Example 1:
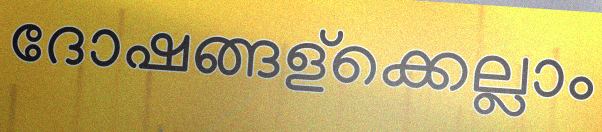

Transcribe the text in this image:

ദോഷങ്ങള്ക്കെല്ലാം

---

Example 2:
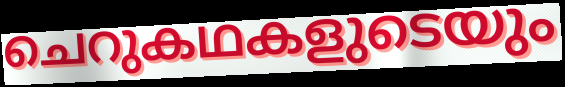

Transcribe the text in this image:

ചെറുകഥകളുടെയും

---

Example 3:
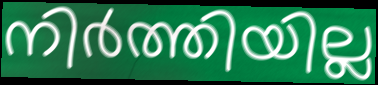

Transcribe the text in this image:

നിർത്തിയില്ല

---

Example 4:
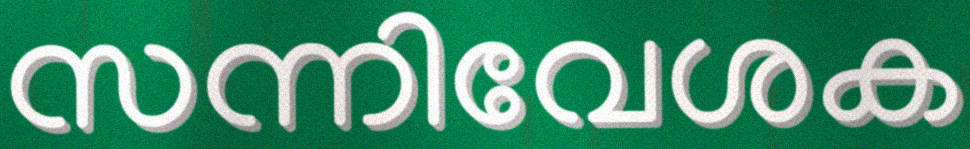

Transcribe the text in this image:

സന്നിവേശക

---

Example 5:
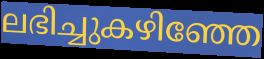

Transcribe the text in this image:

ലഭിച്ചുകഴിഞ്ഞേ